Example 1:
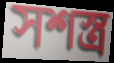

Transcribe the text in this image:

সশস্ত্র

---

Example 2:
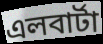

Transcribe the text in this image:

এলবার্টা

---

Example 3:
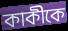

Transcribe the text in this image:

কাকীকে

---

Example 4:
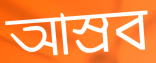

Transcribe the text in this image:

আস্রব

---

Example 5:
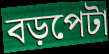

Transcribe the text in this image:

বড়পেটা